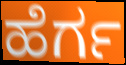
ಹೆರ್ಗ